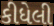
કીધેલી